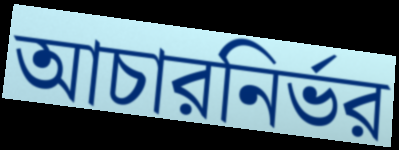
আচারনির্ভর